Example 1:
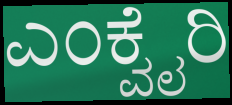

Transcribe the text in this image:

ಎಂಕ್ವೈರಿ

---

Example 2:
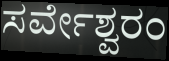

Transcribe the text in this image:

ಸರ್ವೇಶ್ವರಂ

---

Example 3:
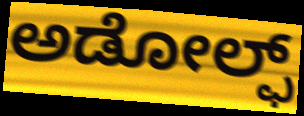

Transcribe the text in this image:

ಅಡೋಲ್ಫ್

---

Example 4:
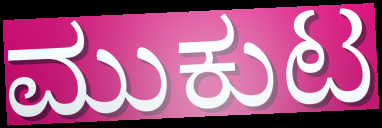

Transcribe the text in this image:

ಮುಕುಟ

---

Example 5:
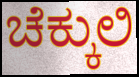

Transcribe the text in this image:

ಚೆಕ್ಕುಲಿ